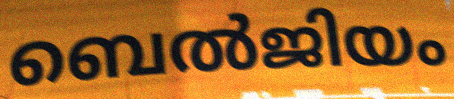
ബെൽജിയം